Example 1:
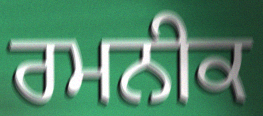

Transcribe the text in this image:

ਰਮਨੀਕ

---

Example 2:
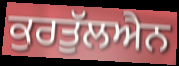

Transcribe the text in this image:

ਕੁਰਤੁੱਲਐਨ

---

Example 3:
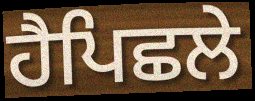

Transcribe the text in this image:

ਹੈਪਿਛਲੇ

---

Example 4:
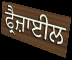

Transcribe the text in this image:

ਫ੍ਰੈਜ਼ਾਈਲ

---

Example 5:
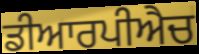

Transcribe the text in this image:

ਡੀਆਰਪੀਐਚ